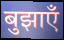
बुझाएँ